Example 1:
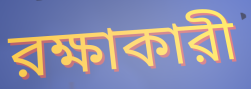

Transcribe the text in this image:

রক্ষাকারী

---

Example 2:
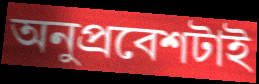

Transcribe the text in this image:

অনুপ্রবেশটাই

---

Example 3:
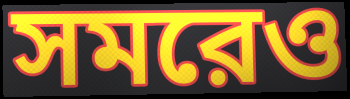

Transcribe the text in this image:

সমরেও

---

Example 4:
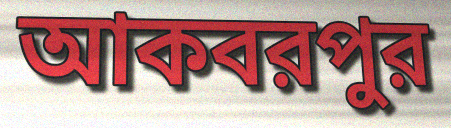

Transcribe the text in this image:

আকবরপুর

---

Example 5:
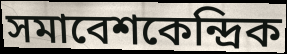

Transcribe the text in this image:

সমাবেশকেন্দ্রিক